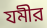
যমীর